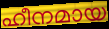
ഹീനമായ